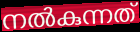
നൽകുന്നത്